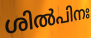
ശിൽപിനഃ